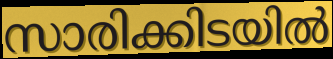
സാരിക്കിടയിൽ